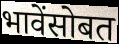
भावेंसोबत